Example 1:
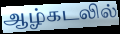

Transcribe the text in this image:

ஆழ்கடலில்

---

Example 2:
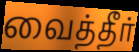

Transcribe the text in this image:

வைத்தீர்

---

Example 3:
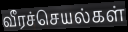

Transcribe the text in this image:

வீரச்செயல்கள்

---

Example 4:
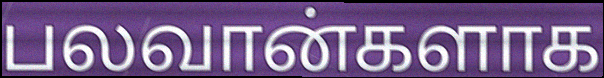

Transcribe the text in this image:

பலவான்களாக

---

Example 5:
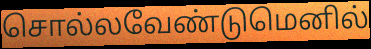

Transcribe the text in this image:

சொல்லவேண்டுமெனில்